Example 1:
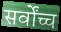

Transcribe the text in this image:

सर्वोंच्च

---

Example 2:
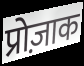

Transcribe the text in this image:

प्रोज़ाक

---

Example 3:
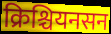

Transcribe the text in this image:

क्रिश्चियनसन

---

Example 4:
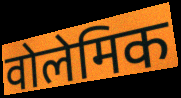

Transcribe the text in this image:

वोलेमिक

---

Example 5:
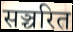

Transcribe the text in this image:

सञ्चरित